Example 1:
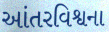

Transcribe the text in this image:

આંતરવિશ્વના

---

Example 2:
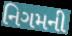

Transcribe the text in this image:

નિગમની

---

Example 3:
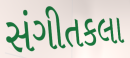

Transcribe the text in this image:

સંગીતકલા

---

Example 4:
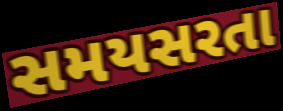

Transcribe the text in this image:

સમયસરતા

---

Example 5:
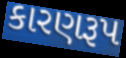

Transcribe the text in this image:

કારણરૂપ